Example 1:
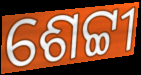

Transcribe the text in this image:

ଶେଟ୍ଟୀ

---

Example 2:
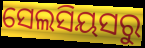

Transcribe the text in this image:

ସେଲସିୟସରୁ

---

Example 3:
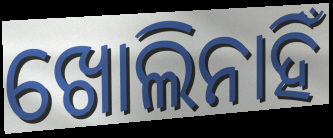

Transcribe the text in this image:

ଖୋଲିନାହିଁ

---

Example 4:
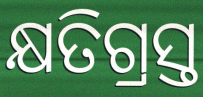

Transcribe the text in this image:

କ୍ଷତିଗ୍ରସ୍ତ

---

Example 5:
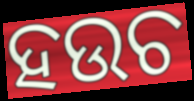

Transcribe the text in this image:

ହଉଚ